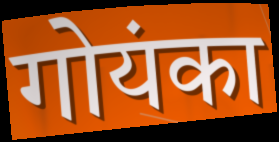
गोयंका